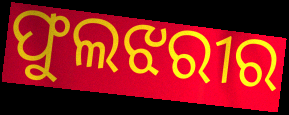
ଫୁଲଝରୀର